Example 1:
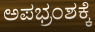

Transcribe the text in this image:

ಅಪಭ್ರಂಶಕ್ಕೆ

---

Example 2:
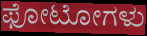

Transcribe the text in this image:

ಫೋಟೋಗಳು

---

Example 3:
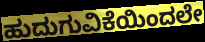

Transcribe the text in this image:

ಹುದುಗುವಿಕೆಯಿಂದಲೇ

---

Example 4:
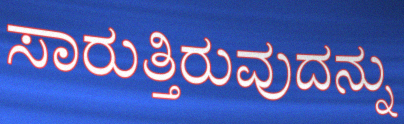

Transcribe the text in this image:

ಸಾರುತ್ತಿರುವುದನ್ನು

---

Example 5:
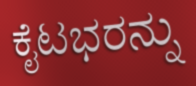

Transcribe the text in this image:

ಕೈಟಭರನ್ನು